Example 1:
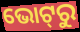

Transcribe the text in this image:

ଭୋଟ୍‌ରୁ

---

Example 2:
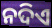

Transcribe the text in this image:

ନଦିଏ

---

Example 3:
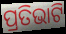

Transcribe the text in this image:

ପ୍ରତିଭାଟି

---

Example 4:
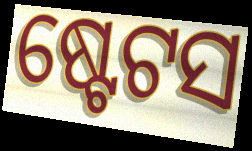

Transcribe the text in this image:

ଷ୍ଟେଟସ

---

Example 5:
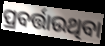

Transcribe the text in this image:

ପ୍ରବର୍ତ୍ତାଉଥିବା